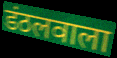
डंठलवाला